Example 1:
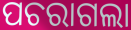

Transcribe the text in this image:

ପଚରାଗଲା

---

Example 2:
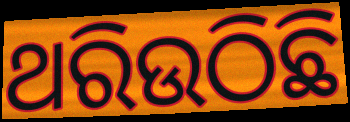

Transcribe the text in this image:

ଥରିଉଠିଛି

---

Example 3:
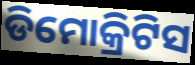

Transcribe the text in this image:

ଡିମୋକ୍ରିଟିସ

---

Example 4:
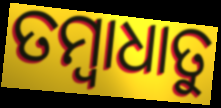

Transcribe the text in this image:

ତମ୍ବାଧାତୁ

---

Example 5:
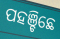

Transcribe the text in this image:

ପହଞ୍ଚିଛେ